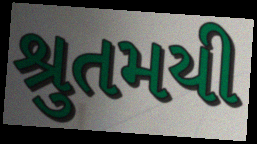
શ્રુતમયી